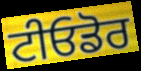
ਟੀਓਡੋਰ